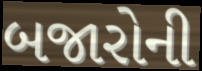
બજારોની